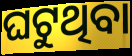
ଘଟୁଥିବା